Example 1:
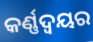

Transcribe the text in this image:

କର୍ଣ୍ଣଦ୍ୱୟର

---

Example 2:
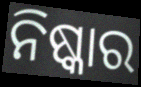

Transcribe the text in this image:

ନିଷ୍କାର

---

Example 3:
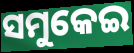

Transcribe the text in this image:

ସମୁକେଇ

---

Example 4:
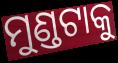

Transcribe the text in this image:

ମୁଣ୍ଡଟାକୁ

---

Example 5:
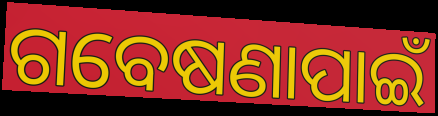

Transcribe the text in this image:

ଗବେଷଣାପାଇଁ